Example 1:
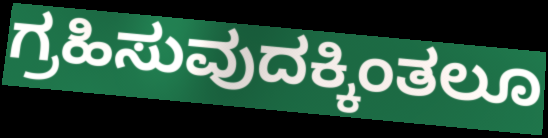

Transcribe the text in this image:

ಗ್ರಹಿಸುವುದಕ್ಕಿಂತಲೂ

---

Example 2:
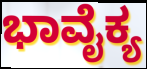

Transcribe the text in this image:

ಭಾವೈಕ್ಯ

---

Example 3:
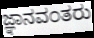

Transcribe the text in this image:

ಜ್ಞಾನವಂತರು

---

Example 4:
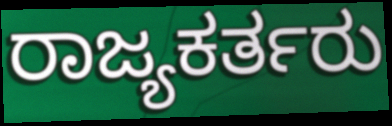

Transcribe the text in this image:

ರಾಜ್ಯಕರ್ತರು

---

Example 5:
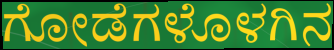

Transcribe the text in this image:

ಗೋಡೆಗಳೊಳಗಿನ